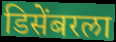
डिसेंबरला